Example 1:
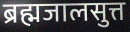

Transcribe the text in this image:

ब्रह्मजालसुत्त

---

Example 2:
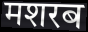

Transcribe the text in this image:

मशरब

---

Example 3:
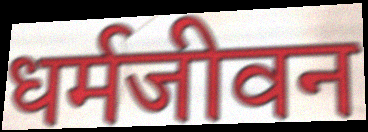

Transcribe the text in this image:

धर्मजीवन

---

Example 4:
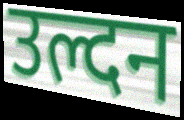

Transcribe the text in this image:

उल्दन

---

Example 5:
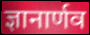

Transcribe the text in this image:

ज्ञानार्णव